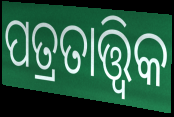
ପତ୍ରତାତ୍ତ୍ୱିକ